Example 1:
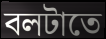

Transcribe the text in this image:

বলটাতে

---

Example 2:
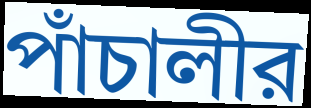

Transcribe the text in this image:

পাঁচালীর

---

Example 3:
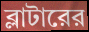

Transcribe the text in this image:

ব্লাটারের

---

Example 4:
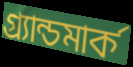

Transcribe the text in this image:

গ্র্যান্ডমার্ক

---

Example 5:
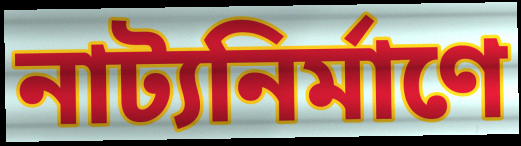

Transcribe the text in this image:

নাট্যনির্মাণে